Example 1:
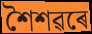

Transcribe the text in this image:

শৈশৱৰে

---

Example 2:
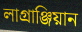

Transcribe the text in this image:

লাগ্ৰাঞ্জিয়ান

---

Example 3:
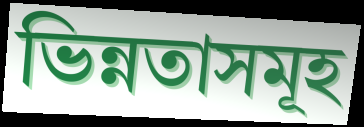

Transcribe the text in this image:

ভিন্নতাসমূহ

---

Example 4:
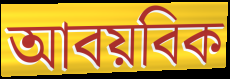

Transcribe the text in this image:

আবয়বিক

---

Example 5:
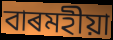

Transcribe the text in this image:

বাৰমহীয়া